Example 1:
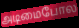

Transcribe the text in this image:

அடிமைபோல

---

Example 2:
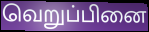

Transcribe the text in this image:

வெறுப்பினை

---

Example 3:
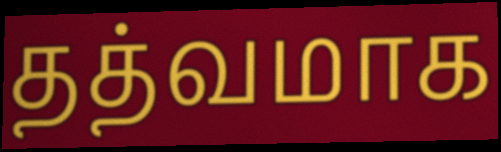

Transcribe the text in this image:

தத்வமாக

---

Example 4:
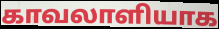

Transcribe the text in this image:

காவலாளியாக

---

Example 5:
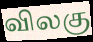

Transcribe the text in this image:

விலகு